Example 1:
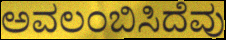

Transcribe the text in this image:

ಅವಲಂಬಿಸಿದೆವು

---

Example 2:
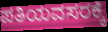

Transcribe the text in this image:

ಪತಿಯವಸರಕ್ಕೆ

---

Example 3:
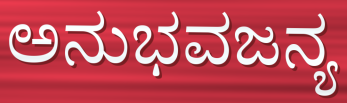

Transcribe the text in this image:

ಅನುಭವಜನ್ಯ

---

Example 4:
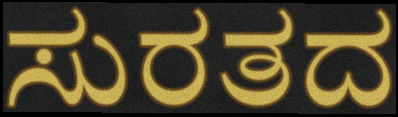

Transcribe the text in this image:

ಸುರತದ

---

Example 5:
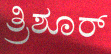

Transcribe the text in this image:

ತ್ರಿಶೂರ್